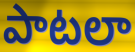
పాటలా